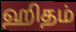
ஹிதம்